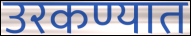
उरकण्यात